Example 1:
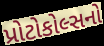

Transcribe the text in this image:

પ્રોટોકોલ્સનો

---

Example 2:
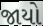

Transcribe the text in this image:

જાયો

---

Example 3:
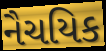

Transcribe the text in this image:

નૈચયિક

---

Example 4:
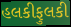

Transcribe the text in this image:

હલકીફુલકી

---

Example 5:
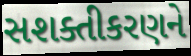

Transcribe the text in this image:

સશક્તીકરણને